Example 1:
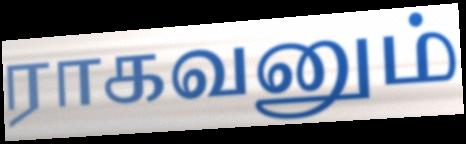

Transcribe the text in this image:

ராகவனும்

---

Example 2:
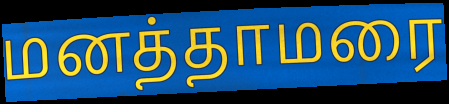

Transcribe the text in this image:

மனத்தாமரை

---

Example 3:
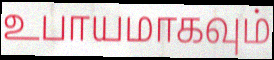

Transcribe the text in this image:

உபாயமாகவும்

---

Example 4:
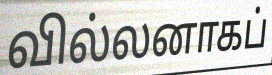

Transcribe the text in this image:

வில்லனாகப்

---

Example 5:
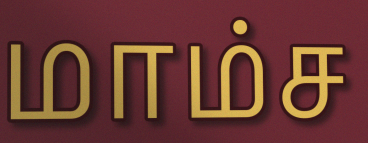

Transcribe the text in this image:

மாம்ச